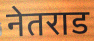
नेतराड